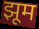
झूम